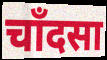
चाँदसा